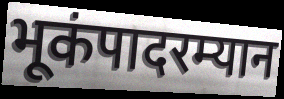
भूकंपादरम्यान